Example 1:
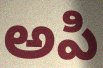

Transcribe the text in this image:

అపి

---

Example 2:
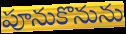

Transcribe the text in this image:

పూనుకొనును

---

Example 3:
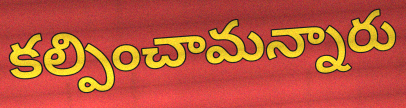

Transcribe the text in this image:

కల్పించామన్నారు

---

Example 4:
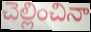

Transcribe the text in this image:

చెల్లించినా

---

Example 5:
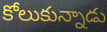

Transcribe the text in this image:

కోలుకున్నాడు